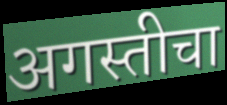
अगस्तीचा